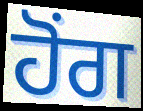
ਹੋਂਗ